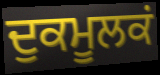
ਦੁਕਮੂਲਕਂ